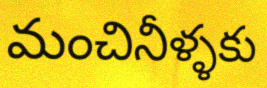
మంచినీళ్ళకు